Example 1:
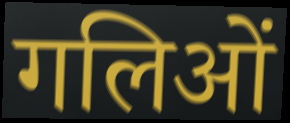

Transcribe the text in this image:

गलिओं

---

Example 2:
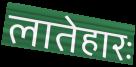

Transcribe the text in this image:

लातेहारः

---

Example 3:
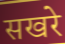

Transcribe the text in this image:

सखरे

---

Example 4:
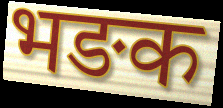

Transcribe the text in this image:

भङक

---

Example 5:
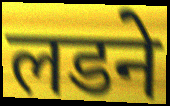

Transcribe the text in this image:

लडने